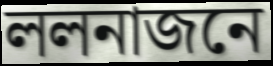
ললনাজনে